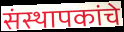
संस्थापकांचे